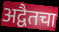
अद्वैतचा